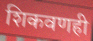
शिकवणही